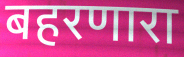
बहरणारा